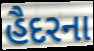
હૈદરના